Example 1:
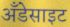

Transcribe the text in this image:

अँडेसाइट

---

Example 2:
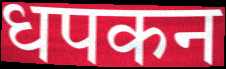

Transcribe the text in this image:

धपकन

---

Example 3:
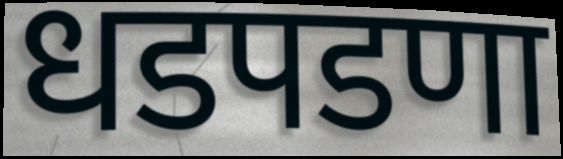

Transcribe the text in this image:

धडपडणा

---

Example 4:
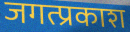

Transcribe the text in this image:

जगत्प्रकाश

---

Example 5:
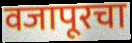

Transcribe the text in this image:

वजापूरचा